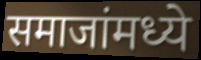
समाजांमध्ये